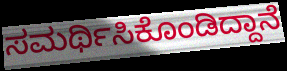
ಸಮರ್ಥಿಸಿಕೊಂಡಿದ್ದಾನೆ